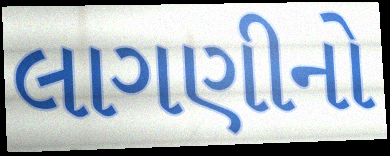
લાગણીનો